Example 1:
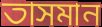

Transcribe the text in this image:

তাসমান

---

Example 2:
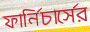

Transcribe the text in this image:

ফার্নিচার্সের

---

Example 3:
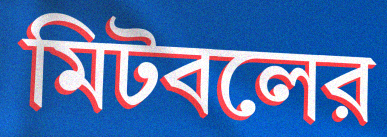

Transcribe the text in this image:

মিটবলের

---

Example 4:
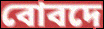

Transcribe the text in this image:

বোবদে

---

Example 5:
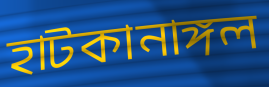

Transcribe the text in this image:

হাটকানাঙ্গল